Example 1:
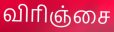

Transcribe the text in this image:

விரிஞ்சை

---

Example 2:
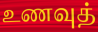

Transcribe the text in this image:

உணவுத்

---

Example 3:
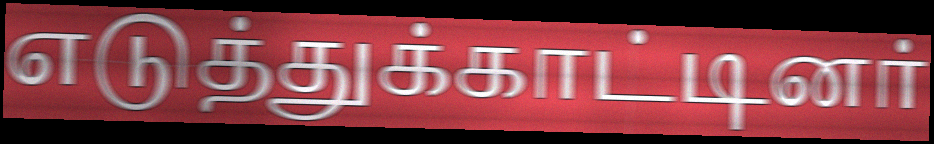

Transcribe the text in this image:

எடுத்துக்காட்டினர்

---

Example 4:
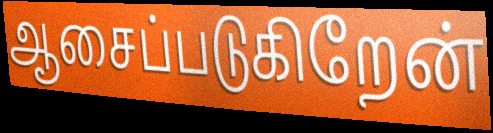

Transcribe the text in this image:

ஆசைப்படுகிறேன்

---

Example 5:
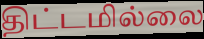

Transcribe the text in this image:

திட்டமில்லை